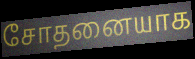
சோதனையாக